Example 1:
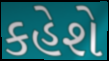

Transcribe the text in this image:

કહેશે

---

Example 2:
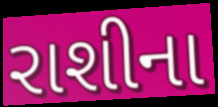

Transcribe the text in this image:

રાશીના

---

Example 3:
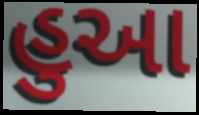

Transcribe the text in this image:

હુઆ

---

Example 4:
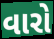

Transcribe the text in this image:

વારો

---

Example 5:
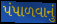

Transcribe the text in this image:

પંપાળવાનું